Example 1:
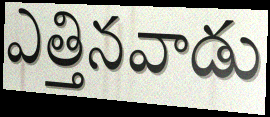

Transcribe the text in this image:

ఎత్తినవాడు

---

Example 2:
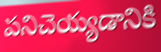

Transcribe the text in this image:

పనిచెయ్యడానికి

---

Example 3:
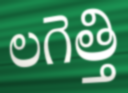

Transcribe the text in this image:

లగెత్తి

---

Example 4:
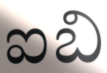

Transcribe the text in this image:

ఐబి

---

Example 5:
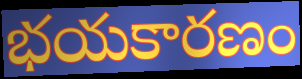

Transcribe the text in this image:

భయకారణం